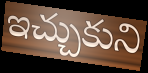
ఇచ్చుకుని